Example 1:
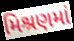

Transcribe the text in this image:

મિશ્રણમાં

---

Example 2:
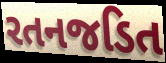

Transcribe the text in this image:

રતનજડિત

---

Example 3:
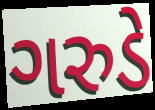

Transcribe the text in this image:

ગરુડે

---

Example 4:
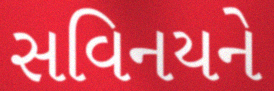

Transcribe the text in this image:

સવિનયને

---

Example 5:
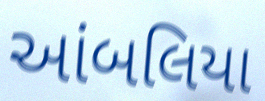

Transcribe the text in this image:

આંબલિયા